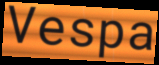
Vespa